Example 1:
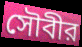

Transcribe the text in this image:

সৌবীর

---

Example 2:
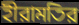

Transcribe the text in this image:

হীরামতির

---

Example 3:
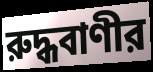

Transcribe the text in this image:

রুদ্ধবাণীর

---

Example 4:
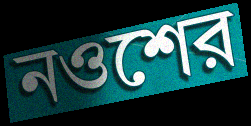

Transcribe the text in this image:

নওশের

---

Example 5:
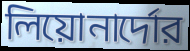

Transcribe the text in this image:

লিয়োনার্দোর